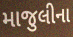
માજુલીના